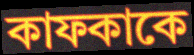
কাফকাকে